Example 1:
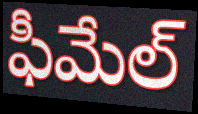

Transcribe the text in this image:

ఫీమేల్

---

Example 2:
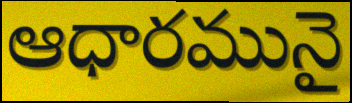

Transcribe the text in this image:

ఆధారమునై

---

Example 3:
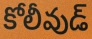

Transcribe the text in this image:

కోలీవుడ్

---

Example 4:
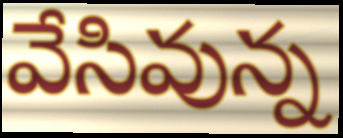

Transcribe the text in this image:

వేసివున్న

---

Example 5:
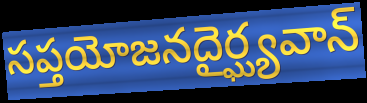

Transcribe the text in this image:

సప్తయోజనదైర్ఘ్యవాన్